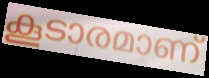
കൂടാരമാണ്